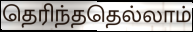
தெரிந்ததெல்லாம்